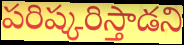
పరిష్కరిస్తాడని